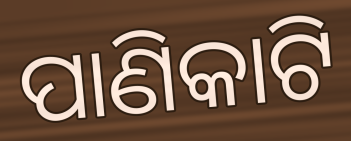
ପାଣିକାଟି